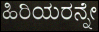
ಹಿರಿಯರನ್ನೇ